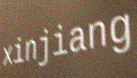
xinjiang